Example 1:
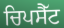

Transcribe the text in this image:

ਚਿਪਸੈੱਟ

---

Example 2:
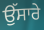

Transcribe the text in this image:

ਉੱਸਾਰੇ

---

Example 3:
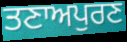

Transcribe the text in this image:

ਤਣਾਅਪੁਰਣ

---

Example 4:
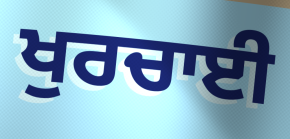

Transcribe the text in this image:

ਖੁਰਚਾਈ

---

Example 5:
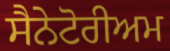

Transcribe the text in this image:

ਸੈਨੇਟੋਰੀਅਮ